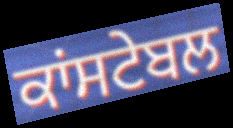
ਕਾਂਸਟੇਬਲ